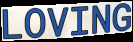
LOVING